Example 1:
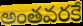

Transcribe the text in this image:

అంతవరకే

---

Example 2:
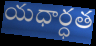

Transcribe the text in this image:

యధార్ధత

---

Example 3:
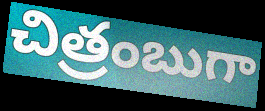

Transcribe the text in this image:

చిత్రంబుగా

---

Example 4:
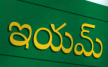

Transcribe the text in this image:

ఇయమ్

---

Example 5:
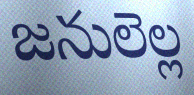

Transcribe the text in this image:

జనులెల్ల